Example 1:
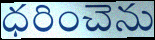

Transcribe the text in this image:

ధరించెను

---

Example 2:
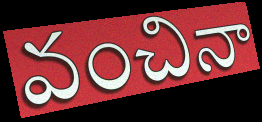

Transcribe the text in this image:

వంచినా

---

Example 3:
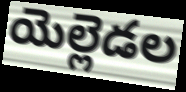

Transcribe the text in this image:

యెల్లెడల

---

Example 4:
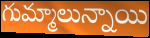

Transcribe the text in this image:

గుమ్మాలున్నాయి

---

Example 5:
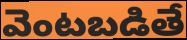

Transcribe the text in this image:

వెంటబడితే